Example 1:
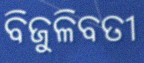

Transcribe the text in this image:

ବିଜୁଳିବତୀ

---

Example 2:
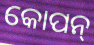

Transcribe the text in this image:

କୋପନ୍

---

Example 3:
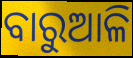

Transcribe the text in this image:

ବାରୁଆଳି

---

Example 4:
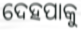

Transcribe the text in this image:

ଦେହପାକୁ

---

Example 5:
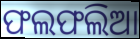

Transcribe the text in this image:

ଫଲଫଲିଆ